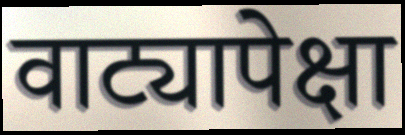
वाट्यापेक्षा